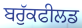
ਬਰੁੱਕਫੀਲਡ